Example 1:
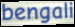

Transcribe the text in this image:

bengali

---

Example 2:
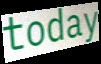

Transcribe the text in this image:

today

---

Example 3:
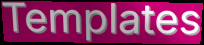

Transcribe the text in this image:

Templates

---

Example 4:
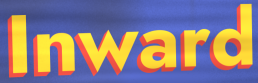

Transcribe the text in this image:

Inward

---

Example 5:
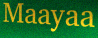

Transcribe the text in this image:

Maayaa